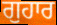
ਗੁਹਾਰ